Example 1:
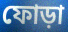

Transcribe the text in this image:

ফোড়া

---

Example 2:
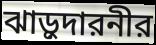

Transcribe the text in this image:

ঝাড়ুদারনীর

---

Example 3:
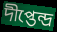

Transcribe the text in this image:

দীপ্তেন্দ্র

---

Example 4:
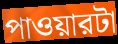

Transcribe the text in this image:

পাওয়ারটা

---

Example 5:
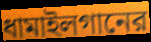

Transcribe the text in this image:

ধামাইলগানের